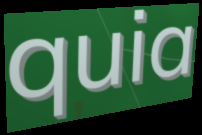
quia